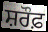
ਸ਼ਰੌਫ਼